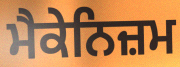
ਮੈਕੇਨਿਜ਼ਮ